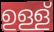
ഉള്ള്